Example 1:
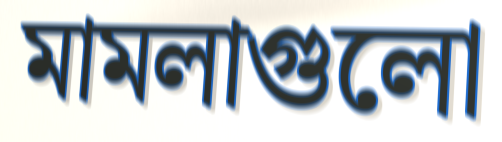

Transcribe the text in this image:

মামলাগুলো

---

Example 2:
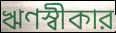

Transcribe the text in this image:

ঋণস্বীকার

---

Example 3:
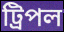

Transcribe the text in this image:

ট্রিপল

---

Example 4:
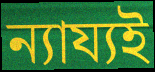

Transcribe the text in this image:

ন্যায্যই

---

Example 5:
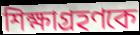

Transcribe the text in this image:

শিক্ষাগ্রহণকে